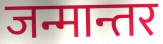
जन्मान्तर